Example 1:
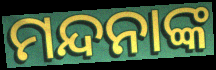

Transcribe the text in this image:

ମନ୍ଦନାଙ୍କ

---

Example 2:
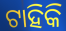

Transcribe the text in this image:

ଟାହିକି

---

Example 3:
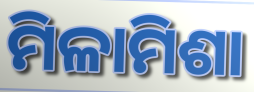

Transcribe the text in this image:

ମିଳାମିଶା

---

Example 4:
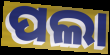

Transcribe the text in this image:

ପଲା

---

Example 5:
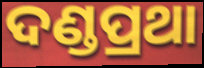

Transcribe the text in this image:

ଦଣ୍ଡପ୍ରଥା